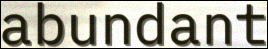
abundant